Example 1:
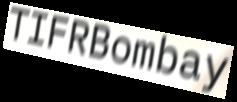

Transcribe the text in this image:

TIFRBombay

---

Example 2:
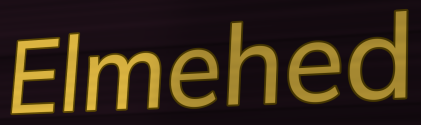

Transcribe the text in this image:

Elmehed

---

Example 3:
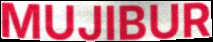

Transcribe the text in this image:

MUJIBUR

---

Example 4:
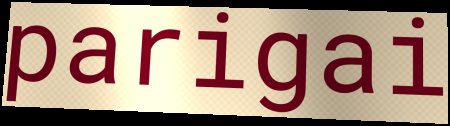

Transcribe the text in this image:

parigai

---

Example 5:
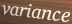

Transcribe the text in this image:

variance